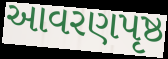
આવરણપૃષ્ઠ